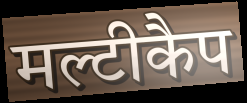
मल्टीकैप